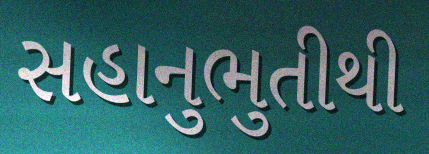
સહાનુભુતીથી